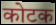
कोटक